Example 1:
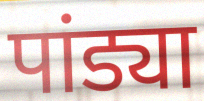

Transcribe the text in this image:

पांड्या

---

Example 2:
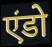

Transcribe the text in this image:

एंडो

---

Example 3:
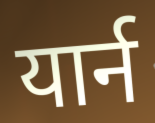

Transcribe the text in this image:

यार्न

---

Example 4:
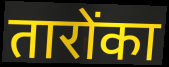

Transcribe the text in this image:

तारोंका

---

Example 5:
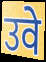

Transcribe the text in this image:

उवे